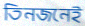
তিনজনেই